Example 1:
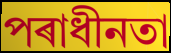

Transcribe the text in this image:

পৰাধীনতা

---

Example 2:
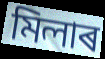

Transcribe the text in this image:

মিলাৰ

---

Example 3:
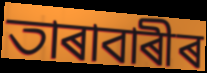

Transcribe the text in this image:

তাৰাবাৰীৰ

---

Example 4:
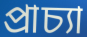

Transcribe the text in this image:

প্ৰাচ্যা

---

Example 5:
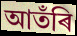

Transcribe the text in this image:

আতঁৰি